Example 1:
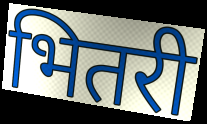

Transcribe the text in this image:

भितरी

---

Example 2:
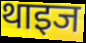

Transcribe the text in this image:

थाइज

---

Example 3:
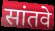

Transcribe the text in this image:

सांतवे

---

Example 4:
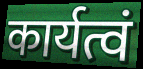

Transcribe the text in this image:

कार्यत्वं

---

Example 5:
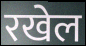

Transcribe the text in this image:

रखेल